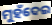
ମୁହଁଦେଇ